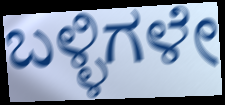
ಬಳ್ಳಿಗಳೇ